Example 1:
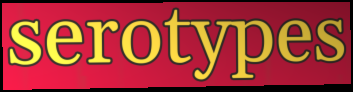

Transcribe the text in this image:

serotypes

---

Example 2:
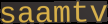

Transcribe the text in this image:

saamtv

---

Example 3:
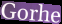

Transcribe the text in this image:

Gorhe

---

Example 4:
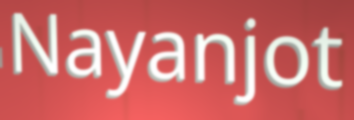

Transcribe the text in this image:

Nayanjot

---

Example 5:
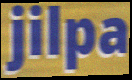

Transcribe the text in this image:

jilpa